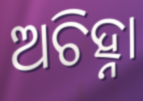
ଅଚିହ୍ନା